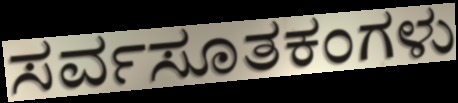
ಸರ್ವಸೂತಕಂಗಳು